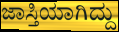
ಜಾಸ್ತಿಯಾಗಿದ್ದು